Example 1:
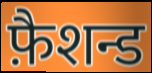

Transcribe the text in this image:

फ़ैशन्ड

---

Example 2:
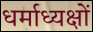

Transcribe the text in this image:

धर्माध्यक्षों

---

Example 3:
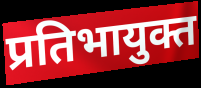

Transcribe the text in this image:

प्रतिभायुक्त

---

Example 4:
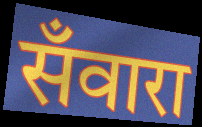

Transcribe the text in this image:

सँवारा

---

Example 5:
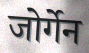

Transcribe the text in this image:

जोर्गेन